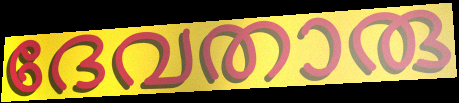
ദേവതാരു